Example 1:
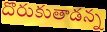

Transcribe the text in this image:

దొరుకుతాడన్న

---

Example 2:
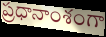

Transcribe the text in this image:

ప్రధానాంశంగా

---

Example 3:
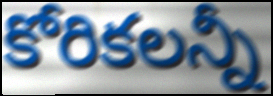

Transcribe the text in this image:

కోరికలన్నీ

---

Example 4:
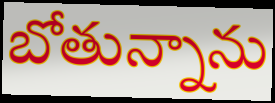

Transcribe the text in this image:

బోతున్నాను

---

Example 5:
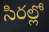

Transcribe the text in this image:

సిరల్లో